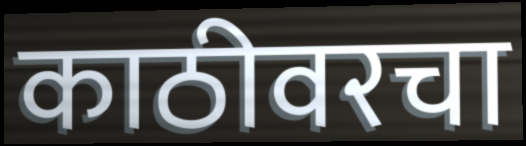
काठीवरचा